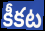
కీకట